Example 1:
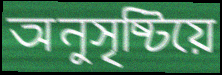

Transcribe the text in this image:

অনুসৃষ্টিয়ে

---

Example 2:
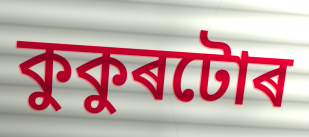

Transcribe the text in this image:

কুকুৰটোৰ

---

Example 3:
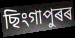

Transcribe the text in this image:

ছিংগাপুৰৰ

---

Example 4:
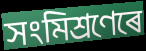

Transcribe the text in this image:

সংমিশ্ৰণেৰে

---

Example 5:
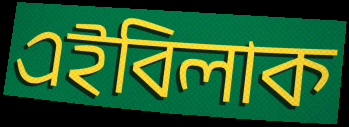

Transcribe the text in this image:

এইবিলাক